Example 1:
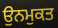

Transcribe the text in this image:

ਉਨਮੁਕਤ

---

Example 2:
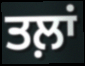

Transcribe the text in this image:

ਤਲ਼ਾਂ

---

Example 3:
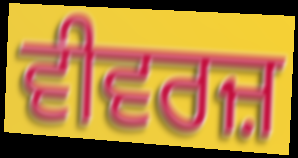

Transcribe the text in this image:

ਵੀਵਰਜ਼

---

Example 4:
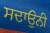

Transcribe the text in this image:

ਸਦਾਉਨੀ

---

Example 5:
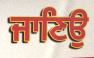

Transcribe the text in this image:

ਜਾਣਿਉ